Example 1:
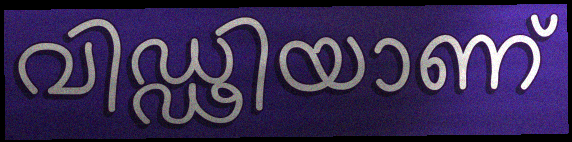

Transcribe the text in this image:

വിഡ്ഢിയാണ്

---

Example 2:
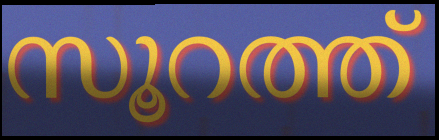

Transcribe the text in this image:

സൂറത്ത്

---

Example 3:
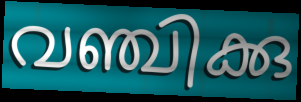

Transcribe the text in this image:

വഞ്ചിക്കു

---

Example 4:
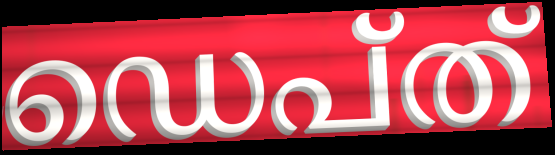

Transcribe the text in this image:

ഡെപ്ത്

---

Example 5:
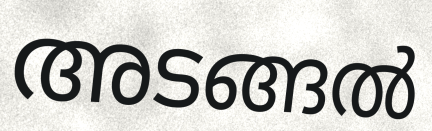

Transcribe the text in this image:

അടങ്ങൽ